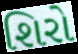
શિરો